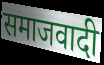
समाजवादी